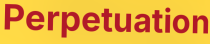
Perpetuation